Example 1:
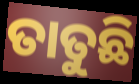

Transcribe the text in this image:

ତାତୁଛି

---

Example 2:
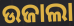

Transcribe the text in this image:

ଉଜାଲା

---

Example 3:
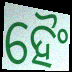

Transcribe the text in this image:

ହୈଂ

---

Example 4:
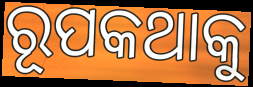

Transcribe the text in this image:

ରୂପକଥାକୁ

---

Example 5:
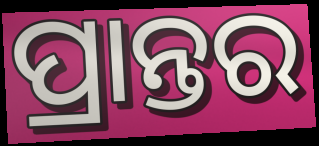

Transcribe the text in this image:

ପ୍ରାନ୍ତର